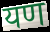
यण